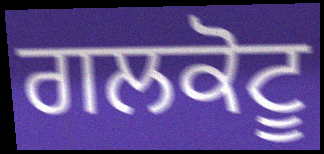
ਗਲਕੋਟੂ